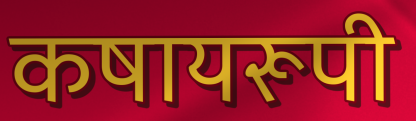
कषायरूपी